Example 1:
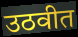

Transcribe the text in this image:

उठवीत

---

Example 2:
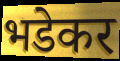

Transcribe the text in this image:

भडेकर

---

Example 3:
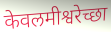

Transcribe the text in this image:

केवलमीश्वरेच्छा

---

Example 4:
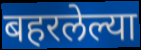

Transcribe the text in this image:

बहरलेल्या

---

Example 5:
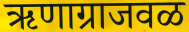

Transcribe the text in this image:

ऋणाग्राजवळ